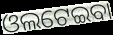
ଓଲଟେଇବା